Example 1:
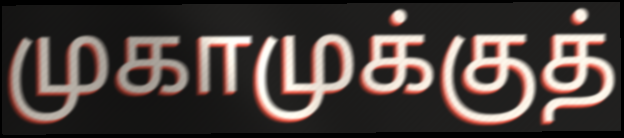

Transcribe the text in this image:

முகாமுக்குத்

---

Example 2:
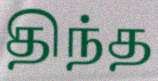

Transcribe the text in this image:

திந்த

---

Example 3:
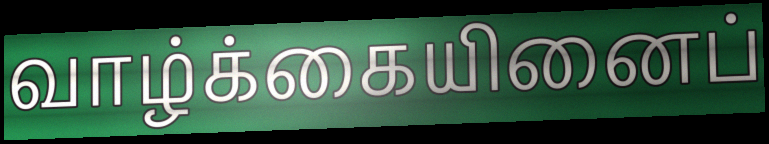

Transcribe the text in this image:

வாழ்க்கையினைப்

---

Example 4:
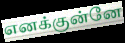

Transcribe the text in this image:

எனக்குன்னே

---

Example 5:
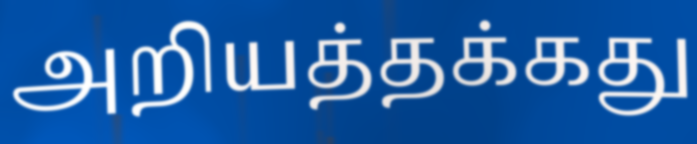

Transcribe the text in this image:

அறியத்தக்கது